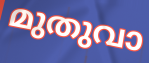
മുതുവാ